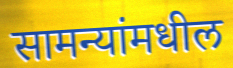
सामन्यांमधील